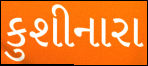
કુશીનારા